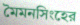
মৈমনসিংহের